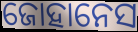
ଜୋହାନେସ